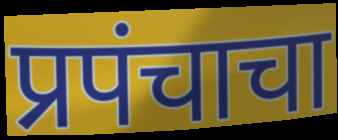
प्रपंचाचा